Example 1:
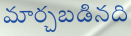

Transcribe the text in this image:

మార్చబడినది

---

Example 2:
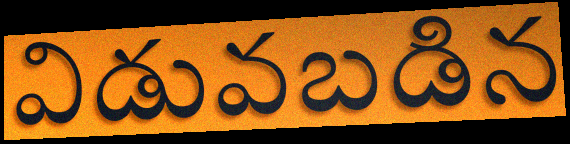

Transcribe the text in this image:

విడువబడిన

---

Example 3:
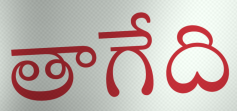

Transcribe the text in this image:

తాగేది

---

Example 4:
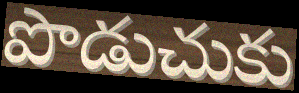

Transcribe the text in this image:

పొడుచుకు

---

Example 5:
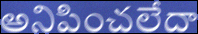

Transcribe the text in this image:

అనిపించలేదా